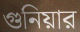
গুনিয়ার